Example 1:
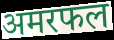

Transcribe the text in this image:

अमरफल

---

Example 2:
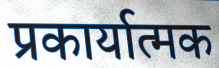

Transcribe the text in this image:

प्रकार्यात्मक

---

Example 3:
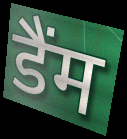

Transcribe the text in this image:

डैंम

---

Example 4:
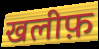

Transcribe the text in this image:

खलीफ़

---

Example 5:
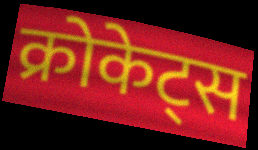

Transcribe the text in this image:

क्रोकेट्स